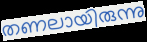
തണലായിരുന്നു